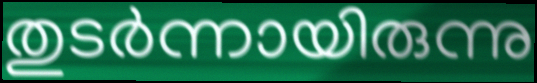
തുടർന്നായിരുന്നു